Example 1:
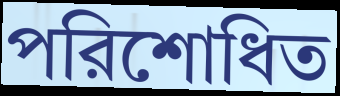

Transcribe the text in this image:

পরিশোধিত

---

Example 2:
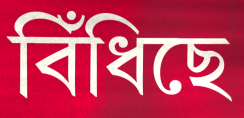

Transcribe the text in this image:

বিঁধিছে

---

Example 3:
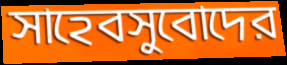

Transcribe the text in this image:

সাহেবসুবোদের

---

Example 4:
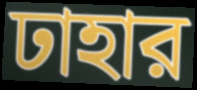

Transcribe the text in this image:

ঢাহার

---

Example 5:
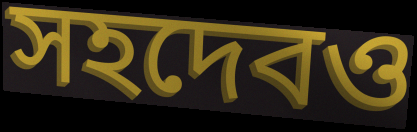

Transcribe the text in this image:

সহদেবও